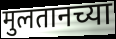
मुलतानच्या